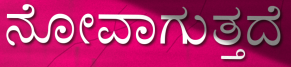
ನೋವಾಗುತ್ತದೆ